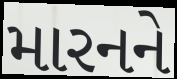
મારનને